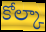
కోల్కా